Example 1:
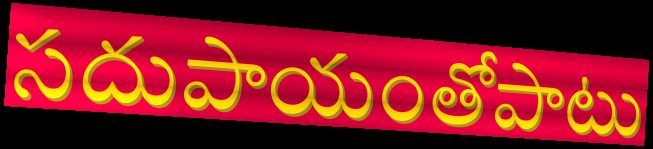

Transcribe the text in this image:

సదుపాయంతోపాటు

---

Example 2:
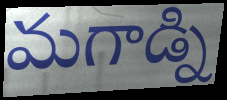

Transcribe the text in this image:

మగాడ్ని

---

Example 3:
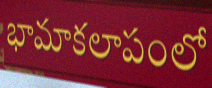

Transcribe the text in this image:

భామాకలాపంలో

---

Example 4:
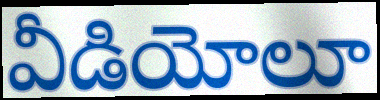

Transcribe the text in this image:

వీడియోలూ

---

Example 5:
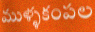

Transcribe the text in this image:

ముళ్ళకంపల